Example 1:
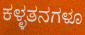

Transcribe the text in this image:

ಕಳ್ಳತನಗಳೂ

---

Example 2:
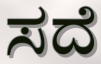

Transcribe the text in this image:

ಸದೆ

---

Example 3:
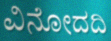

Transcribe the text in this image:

ವಿನೋದದಿ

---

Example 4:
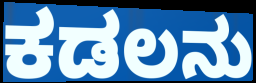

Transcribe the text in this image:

ಕಡಲನು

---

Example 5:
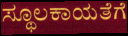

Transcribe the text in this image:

ಸ್ಥೂಲಕಾಯತೆಗೆ